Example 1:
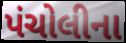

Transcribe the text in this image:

પંચોલીના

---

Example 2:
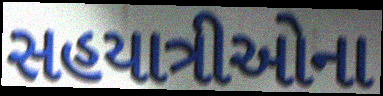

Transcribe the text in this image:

સહયાત્રીઓના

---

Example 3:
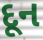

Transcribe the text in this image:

દૂન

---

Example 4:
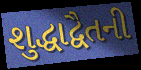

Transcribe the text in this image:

શુદ્ધાદ્વૈતની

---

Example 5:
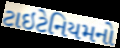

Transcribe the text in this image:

ટાઇટેનિયમનો